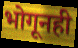
भोगूनही